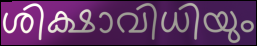
ശിക്ഷാവിധിയും